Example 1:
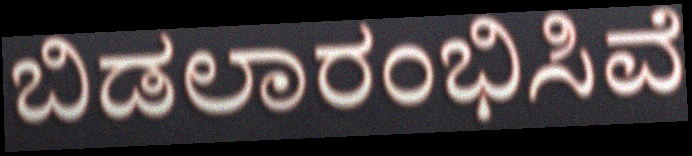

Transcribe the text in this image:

ಬಿಡಲಾರಂಭಿಸಿವೆ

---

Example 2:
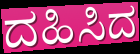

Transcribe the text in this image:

ದಹಿಸಿದ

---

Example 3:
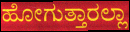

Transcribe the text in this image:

ಹೋಗುತ್ತಾರಲ್ಲಾ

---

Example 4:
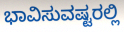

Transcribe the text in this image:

ಭಾವಿಸುವಷ್ಟರಲ್ಲಿ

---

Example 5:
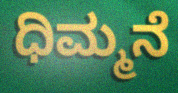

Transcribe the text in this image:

ಧಿಮ್ಮನೆ